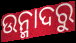
ଉନ୍ମାଦରୁ